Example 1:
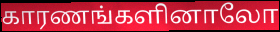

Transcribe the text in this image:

காரணங்களினாலோ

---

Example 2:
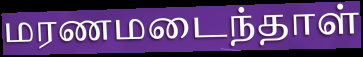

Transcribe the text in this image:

மரணமடைந்தாள்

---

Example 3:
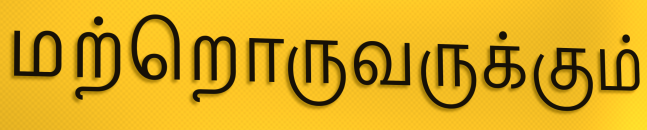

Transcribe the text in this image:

மற்றொருவருக்கும்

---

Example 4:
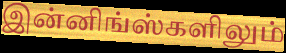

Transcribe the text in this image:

இன்னிங்ஸ்களிலும்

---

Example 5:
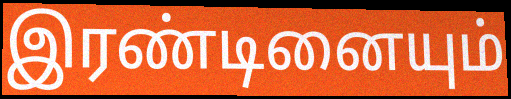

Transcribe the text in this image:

இரண்டினையும்